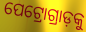
ପେଟ୍ରୋଗ୍ରାଡ଼କୁ